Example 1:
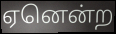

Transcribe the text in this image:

ஏனென்ற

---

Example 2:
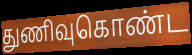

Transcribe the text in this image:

துணிவுகொண்ட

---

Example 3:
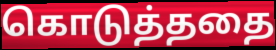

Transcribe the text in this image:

கொடுத்ததை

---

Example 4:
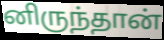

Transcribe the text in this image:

னிருந்தான்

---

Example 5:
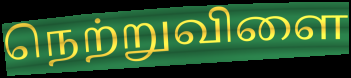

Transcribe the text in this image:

நெற்றுவிளை